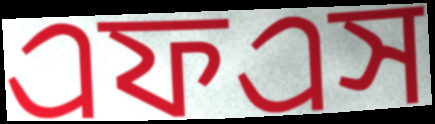
এফএস